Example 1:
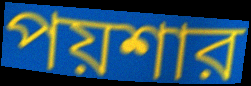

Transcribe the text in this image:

পয়শার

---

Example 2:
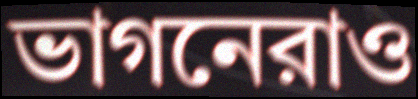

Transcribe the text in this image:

ভাগনেরাও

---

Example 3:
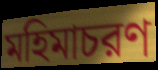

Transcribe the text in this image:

মহিমাচরণ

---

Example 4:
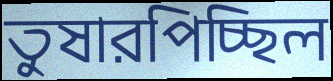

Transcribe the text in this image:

তুষারপিচ্ছিল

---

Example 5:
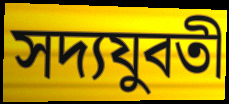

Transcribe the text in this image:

সদ্যযুবতী